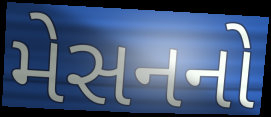
મેસનનો